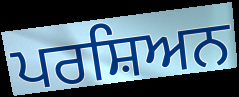
ਪਰਸ਼ਿਅਨ